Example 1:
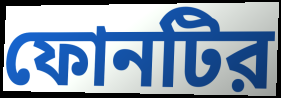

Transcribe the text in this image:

ফোনটির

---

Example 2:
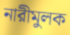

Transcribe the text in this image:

নারীমুলক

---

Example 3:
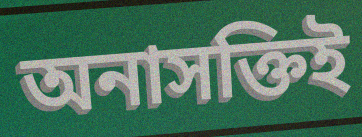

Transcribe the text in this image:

অনাসক্তিই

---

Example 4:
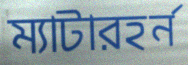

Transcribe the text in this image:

ম্যাটারহর্ন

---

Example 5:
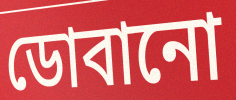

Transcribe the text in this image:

ডোবানো